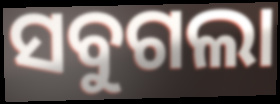
ସବୁଗଲା